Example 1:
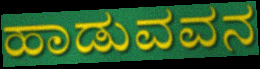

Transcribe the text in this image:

ಹಾಡುವವನ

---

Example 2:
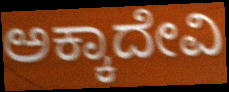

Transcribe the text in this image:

ಅಕ್ಕಾದೇವಿ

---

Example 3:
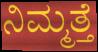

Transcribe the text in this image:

ನಿಮ್ಮತ್ತೆ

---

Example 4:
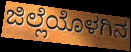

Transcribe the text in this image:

ಜಿಲ್ಲೆಯೊಳಗಿನ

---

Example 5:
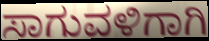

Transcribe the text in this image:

ಸಾಗುವಳಿಗಾಗಿ